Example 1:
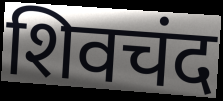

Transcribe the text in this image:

शिवचंद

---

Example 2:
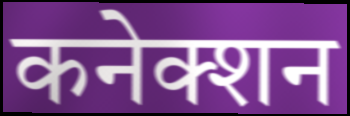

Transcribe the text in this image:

कनेक्‍शन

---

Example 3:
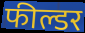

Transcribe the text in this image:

फील्डर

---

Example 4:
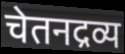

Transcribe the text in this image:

चेतनद्रव्य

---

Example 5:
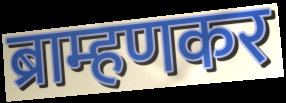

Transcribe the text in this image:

ब्राम्हणकर